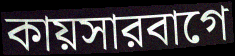
কায়সারবাগে